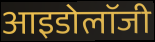
आइडोलॉजी